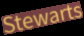
Stewarts